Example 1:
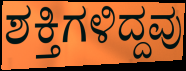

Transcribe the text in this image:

ಶಕ್ತಿಗಳಿದ್ದವು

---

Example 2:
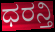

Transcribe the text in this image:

ಧರನ್ತಿ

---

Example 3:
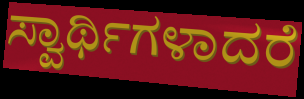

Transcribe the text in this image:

ಸ್ವಾರ್ಥಿಗಳಾದರೆ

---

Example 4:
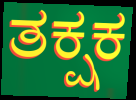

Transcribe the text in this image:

ತಕ್ಷಕ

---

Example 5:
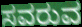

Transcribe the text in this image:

ಸವರುವ